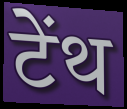
टेंथ